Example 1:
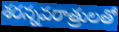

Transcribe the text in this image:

శరన్నవరాత్రులతో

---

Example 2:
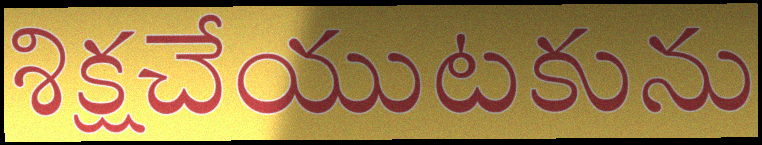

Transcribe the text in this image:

శిక్షచేయుటకును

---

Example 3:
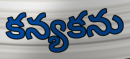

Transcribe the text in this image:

కన్యకను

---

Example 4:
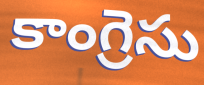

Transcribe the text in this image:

కాంగ్రెసు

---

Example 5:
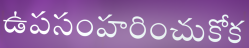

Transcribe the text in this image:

ఉపసంహరించుకోక